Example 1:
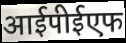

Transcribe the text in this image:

आईपीईएफ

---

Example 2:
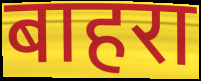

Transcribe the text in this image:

बाहरा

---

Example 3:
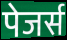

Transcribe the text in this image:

पेजर्स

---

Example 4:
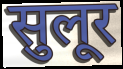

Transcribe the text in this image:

सुलूर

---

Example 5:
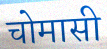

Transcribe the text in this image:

चोमासी